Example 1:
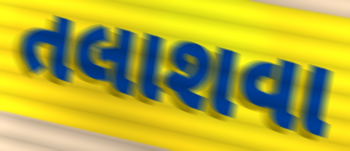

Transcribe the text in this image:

તલાશવા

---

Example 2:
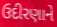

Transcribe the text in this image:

ઉદીરણાને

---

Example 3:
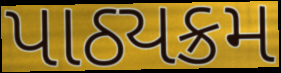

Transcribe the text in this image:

પાઠ્યક્રમ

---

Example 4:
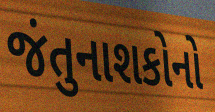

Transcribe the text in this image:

જંતુનાશકોનો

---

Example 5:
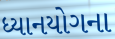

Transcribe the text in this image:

ધ્યાનયોગના